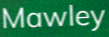
Mawley